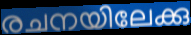
രചനയിലേക്കു